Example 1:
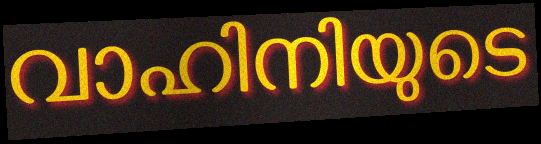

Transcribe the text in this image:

വാഹിനിയുടെ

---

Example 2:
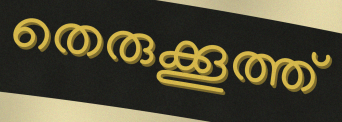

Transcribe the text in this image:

തെരുക്കൂത്ത്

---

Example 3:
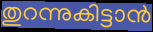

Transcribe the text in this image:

തുറന്നുകിട്ടാൻ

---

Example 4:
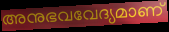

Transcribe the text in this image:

അനുഭവവേദ്യമാണ്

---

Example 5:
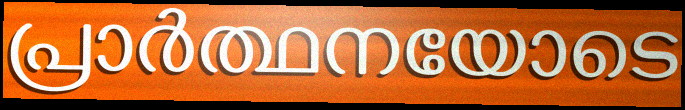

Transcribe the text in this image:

പ്രാർത്ഥനയോടെ